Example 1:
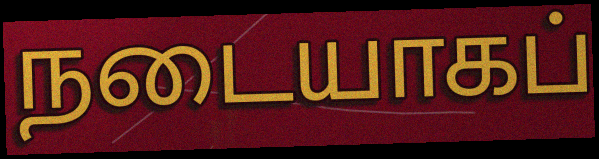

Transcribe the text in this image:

நடையாகப்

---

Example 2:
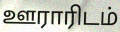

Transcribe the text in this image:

ஊராரிடம்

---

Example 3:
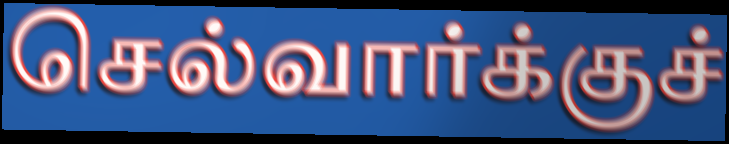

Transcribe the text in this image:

செல்வார்க்குச்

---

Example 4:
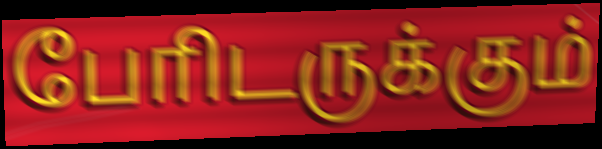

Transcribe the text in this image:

பேரிடருக்கும்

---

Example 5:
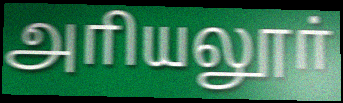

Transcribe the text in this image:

அரியலூர்